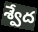
శ్వేద